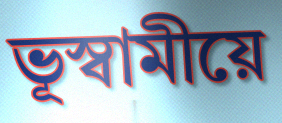
ভূস্বামীয়ে